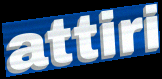
attiri